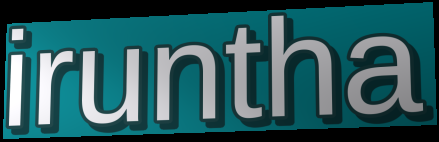
iruntha